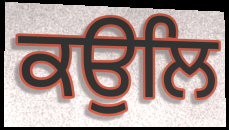
ਕਉਲਿ